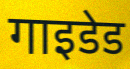
गाइडेड